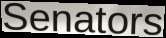
Senators